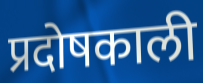
प्रदोषकाली